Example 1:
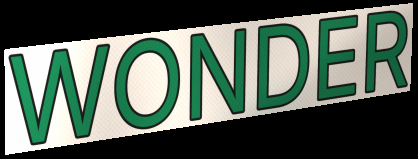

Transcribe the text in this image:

WONDER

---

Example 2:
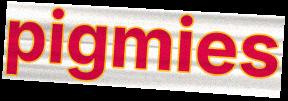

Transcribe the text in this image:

pigmies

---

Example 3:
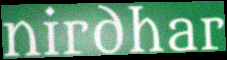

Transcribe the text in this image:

nirdhar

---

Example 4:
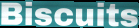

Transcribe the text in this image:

Biscuits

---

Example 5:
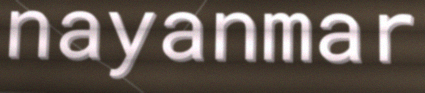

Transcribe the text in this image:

nayanmar